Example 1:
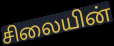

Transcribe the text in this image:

சிலையின்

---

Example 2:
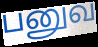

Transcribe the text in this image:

பனுவ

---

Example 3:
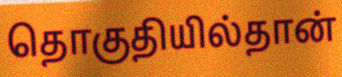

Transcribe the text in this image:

தொகுதியில்தான்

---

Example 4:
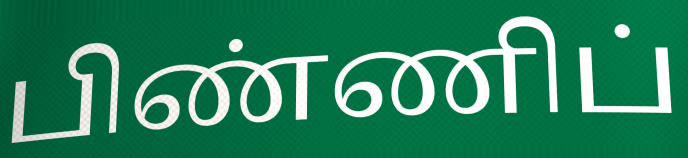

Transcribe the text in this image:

பிண்ணிப்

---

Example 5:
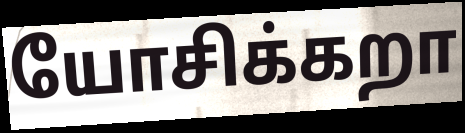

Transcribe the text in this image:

யோசிக்கறா